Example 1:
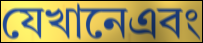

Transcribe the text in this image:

যেখানেএবং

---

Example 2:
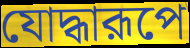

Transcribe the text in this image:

যোদ্ধারূপে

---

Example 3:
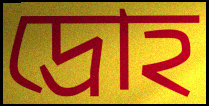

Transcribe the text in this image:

দ্রোহ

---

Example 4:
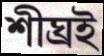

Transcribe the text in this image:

শীঘ্রই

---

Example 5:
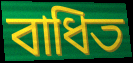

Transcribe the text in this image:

বাধিত